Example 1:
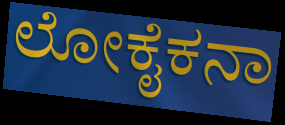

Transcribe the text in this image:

ಲೋಕೈಕನಾ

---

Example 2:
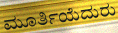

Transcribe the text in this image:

ಮೂರ್ತಿಯೆದುರು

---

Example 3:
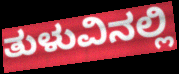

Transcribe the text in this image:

ತುಳುವಿನಲ್ಲಿ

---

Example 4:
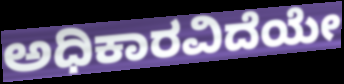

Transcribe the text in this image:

ಅಧಿಕಾರವಿದೆಯೇ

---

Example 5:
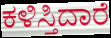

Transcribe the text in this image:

ಕಳಿಸ್ತಿದಾರೆ